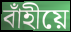
বাঁহীয়ে